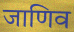
जाणिव